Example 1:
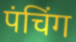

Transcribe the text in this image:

पंचिंग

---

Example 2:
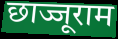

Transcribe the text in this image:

छाज्जूराम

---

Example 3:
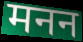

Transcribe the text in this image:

मनन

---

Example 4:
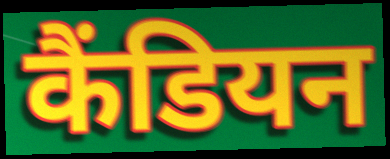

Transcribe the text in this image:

कैंडियन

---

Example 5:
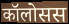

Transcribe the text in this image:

कॉलोसस